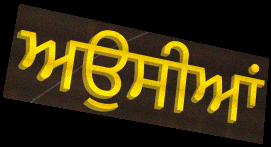
ਅਉਸੀਆਂ